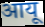
आयू